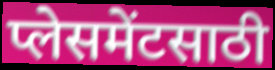
प्लेसमेंटसाठी